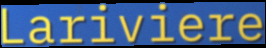
Lariviere